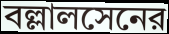
বল্লালসেনের